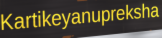
Kartikeyanupreksha